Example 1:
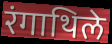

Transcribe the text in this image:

रंगाथिले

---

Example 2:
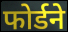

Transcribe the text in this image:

फोर्डने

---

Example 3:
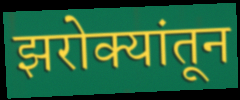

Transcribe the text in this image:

झरोक्यांतून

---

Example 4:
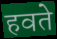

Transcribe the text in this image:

हवते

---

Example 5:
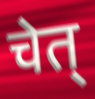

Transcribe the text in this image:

चेत्